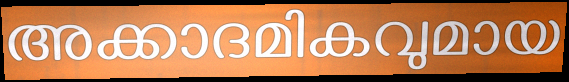
അക്കാദമികവുമായ